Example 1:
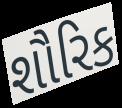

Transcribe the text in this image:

શૌરિક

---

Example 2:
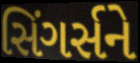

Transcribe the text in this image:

સિંગર્સને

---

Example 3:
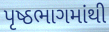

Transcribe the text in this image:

પૃષ્ઠભાગમાંથી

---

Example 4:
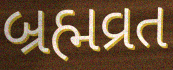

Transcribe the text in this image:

બ્રહ્મવ્રત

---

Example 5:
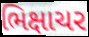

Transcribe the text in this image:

ભિક્ષાચર